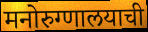
मनोरुग्णालयाची